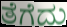
ತೆಗೆದು